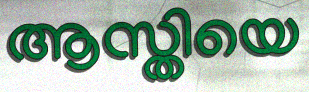
ആസ്തിയെ